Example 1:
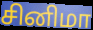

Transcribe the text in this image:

சினிமா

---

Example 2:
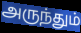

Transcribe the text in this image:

அருந்தும்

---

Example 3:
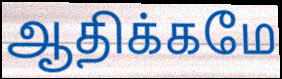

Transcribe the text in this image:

ஆதிக்கமே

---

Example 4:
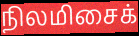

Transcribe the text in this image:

நிலமிசைக்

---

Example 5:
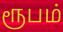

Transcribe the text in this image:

ரூபம்